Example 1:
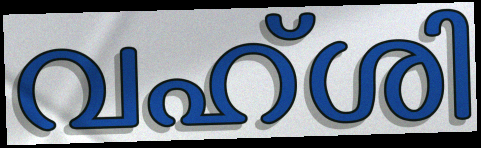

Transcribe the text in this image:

വഹ്ശി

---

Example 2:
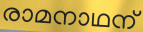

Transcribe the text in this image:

രാമനാഥന്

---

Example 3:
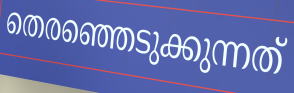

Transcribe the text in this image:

തെരഞ്ഞെടുക്കുന്നത്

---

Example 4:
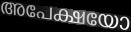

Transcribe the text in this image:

അപേക്ഷയോ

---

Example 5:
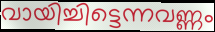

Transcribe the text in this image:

വായിച്ചിട്ടെന്നവണ്ണം